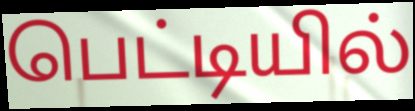
பெட்டியில்